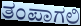
ತಂಪಾಗಲಿ